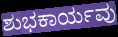
ಶುಭಕಾರ್ಯವು